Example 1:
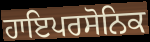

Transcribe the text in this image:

ਹਾਇਪਰਸੋਨਿਕ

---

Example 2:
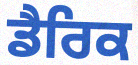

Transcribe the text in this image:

ਡੈਰਿਕ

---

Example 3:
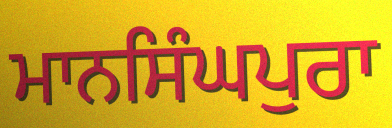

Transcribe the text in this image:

ਮਾਨਸਿੰਘਪੁਰਾ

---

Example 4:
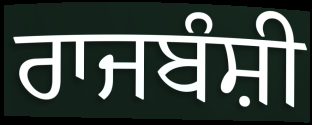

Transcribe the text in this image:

ਰਾਜਬੰਸ਼ੀ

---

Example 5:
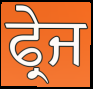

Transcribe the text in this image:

ਫ੍ਰੇਜ